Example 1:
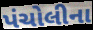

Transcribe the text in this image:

પંચોલીના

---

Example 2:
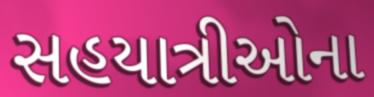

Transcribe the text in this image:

સહયાત્રીઓના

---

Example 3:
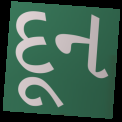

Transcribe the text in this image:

દૂન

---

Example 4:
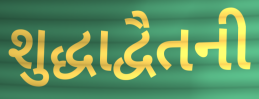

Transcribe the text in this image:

શુદ્ધાદ્વૈતની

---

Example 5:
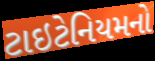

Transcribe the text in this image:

ટાઇટેનિયમનો